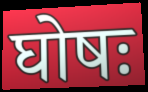
घोषः